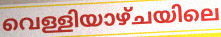
വെള്ളിയാഴ്ചയിലെ